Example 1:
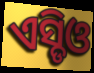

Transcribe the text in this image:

ଏସ୍ଡିଓ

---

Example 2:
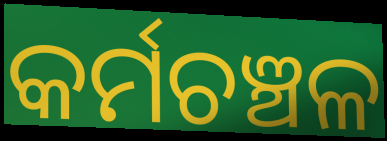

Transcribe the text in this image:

କର୍ମଚଞ୍ଚଳ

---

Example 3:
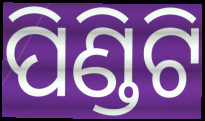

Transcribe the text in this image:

ପିଣ୍ଡିଟି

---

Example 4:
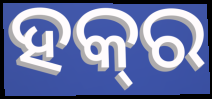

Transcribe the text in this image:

ହକ୍‌ର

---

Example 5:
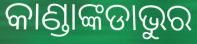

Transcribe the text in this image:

କାଣ୍ଡାଙ୍କଡାଭୁର